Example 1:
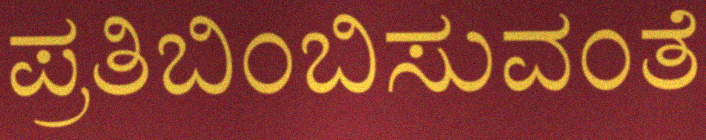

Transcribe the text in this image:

ಪ್ರತಿಬಿಂಬಿಸುವಂತೆ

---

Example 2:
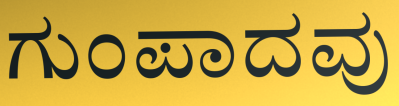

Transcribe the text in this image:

ಗುಂಪಾದವು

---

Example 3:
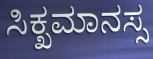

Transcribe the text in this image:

ಸಿಕ್ಖಮಾನಸ್ಸ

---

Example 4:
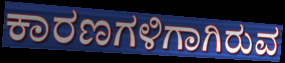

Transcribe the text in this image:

ಕಾರಣಗಳಿಗಾಗಿರುವ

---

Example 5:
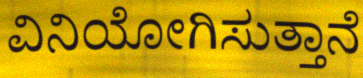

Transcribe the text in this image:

ವಿನಿಯೋಗಿಸುತ್ತಾನೆ